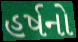
હર્ષનો